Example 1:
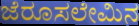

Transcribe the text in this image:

ಜೆರೂಸಲೇಮಿನ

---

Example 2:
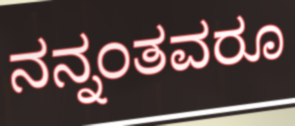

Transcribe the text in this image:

ನನ್ನಂತವರೂ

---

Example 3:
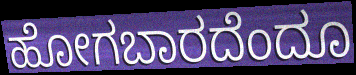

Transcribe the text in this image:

ಹೋಗಬಾರದೆಂದೂ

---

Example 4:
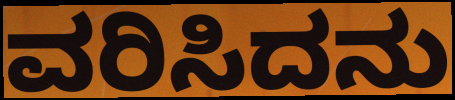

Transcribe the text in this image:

ವರಿಸಿದನು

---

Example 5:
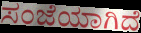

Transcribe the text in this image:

ಸಂಜೆಯಾಗಿದೆ